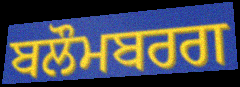
ਬਲੌਮਬਰਗ